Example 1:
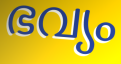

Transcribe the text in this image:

ഭവ്യം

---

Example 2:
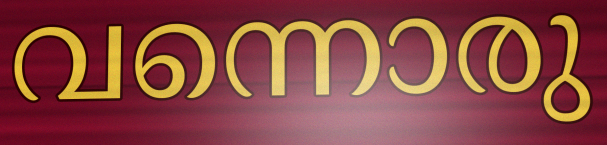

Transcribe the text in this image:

വന്നൊരു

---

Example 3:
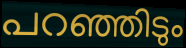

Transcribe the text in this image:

പറഞ്ഞിടും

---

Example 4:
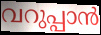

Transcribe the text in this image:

വറുപ്പാൻ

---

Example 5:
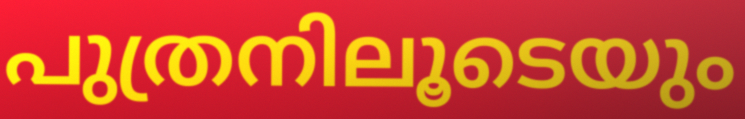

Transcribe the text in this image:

പുത്രനിലൂടെയും